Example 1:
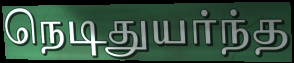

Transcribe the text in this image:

நெடிதுயர்ந்த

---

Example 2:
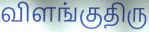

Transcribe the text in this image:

விளங்குதிரு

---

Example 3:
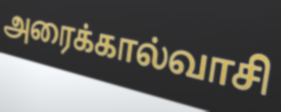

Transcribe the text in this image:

அரைக்கால்வாசி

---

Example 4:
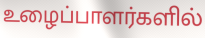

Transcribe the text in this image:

உழைப்பாளர்களில்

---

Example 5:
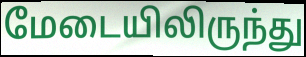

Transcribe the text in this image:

மேடையிலிருந்து